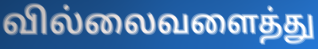
வில்லைவளைத்து